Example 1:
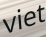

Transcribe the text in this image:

viet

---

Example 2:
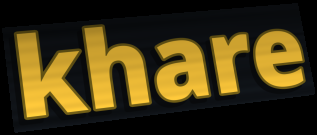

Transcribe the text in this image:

khare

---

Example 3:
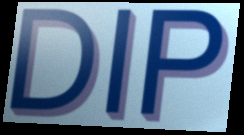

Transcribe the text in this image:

DIP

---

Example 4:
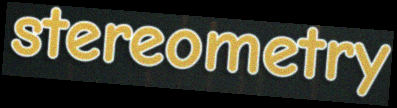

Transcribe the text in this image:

stereometry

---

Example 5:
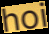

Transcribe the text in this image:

hoi